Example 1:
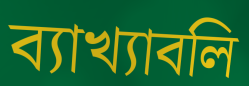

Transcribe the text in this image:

ব্যাখ্যাবলি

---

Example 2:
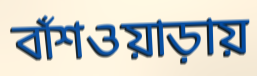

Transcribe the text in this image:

বাঁশওয়াড়ায়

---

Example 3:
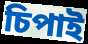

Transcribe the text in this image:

চিপাই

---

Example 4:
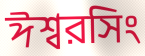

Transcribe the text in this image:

ঈশ্বরসিং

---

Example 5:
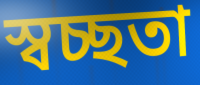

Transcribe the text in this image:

স্বচ্ছতা